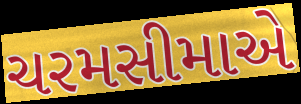
ચરમસીમાએ